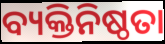
ବ୍ୟକ୍ତିନିଷ୍ଠତା